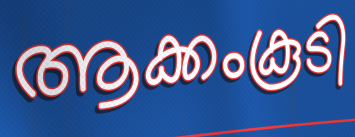
ആക്കംകൂടി